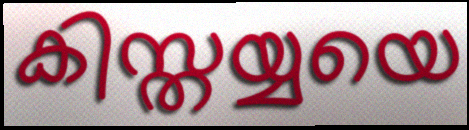
കിസ്തയ്യയെ